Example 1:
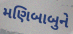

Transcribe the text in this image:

મણિબાબુને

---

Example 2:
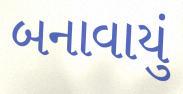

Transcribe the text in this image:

બનાવાયું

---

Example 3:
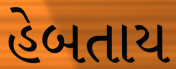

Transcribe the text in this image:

હેબતાય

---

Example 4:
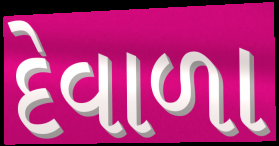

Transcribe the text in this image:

દેવાળા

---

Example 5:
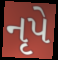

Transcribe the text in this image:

નૃપે